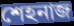
শেহনাজ